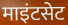
माइंटसेट